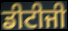
ਡੀਟੀਜੀ